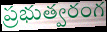
ప్రభుత్వరంగ